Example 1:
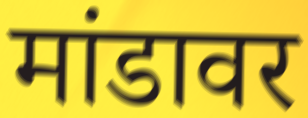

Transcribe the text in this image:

मांडावर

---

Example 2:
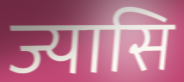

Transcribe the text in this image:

ज्यासि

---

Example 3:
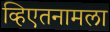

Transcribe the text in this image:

व्हिएतनामला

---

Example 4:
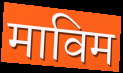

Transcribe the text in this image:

माविम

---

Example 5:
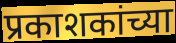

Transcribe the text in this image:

प्रकाशकांच्या